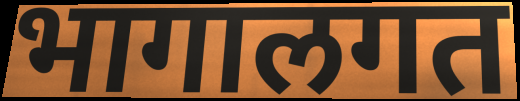
भागालगत